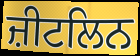
ਜ਼ੀਟਲਿਨ